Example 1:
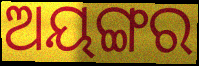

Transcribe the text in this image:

ଅୟଙ୍ଗର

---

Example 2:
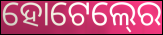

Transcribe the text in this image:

ହୋଟେଲ୍‍ରେ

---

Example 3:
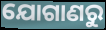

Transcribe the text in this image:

ଯୋଗାଣରୁ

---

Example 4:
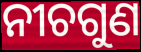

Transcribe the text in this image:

ନୀଚଗୁଣ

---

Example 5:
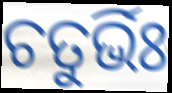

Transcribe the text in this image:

ଚତୁର୍ଭିଃ